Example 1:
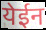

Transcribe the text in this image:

येईन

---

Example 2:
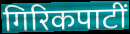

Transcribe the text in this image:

गिरिकपाटीं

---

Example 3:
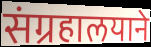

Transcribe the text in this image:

संग्रहालयाने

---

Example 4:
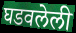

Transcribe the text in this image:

घडवलेली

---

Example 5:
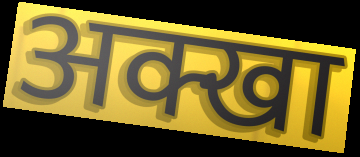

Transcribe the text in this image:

अक्खा